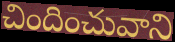
చిందించువాని